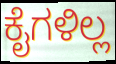
ಕೈಗಳಿಲ್ಲ